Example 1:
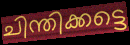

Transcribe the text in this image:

ചിന്തിക്കട്ടെ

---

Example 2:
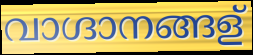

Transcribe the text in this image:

വാഗ്ദാനങ്ങള്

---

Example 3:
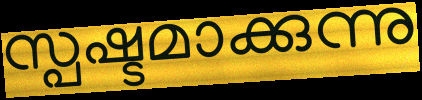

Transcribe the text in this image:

സ്പഷ്ടമാക്കുന്നു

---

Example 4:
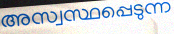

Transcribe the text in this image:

അസ്വസ്ഥപ്പെടുന്ന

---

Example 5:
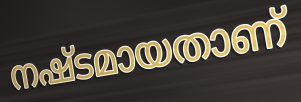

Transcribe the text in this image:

നഷ്ടമായതാണ്